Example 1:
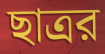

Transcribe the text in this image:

ছাত্রর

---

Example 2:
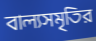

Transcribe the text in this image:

বাল্যসমৃতির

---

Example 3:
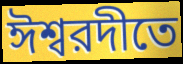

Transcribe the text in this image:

ঈশ্বরদীতে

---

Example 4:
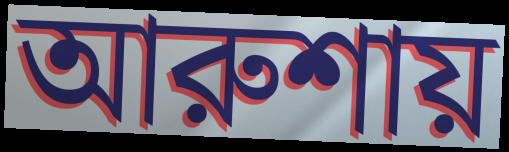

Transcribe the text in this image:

আরুশায়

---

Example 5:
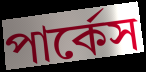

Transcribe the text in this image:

পার্কেস